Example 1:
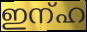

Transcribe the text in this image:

ഇന്ഹ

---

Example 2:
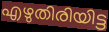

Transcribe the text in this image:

എഴുതിരിയിട്ട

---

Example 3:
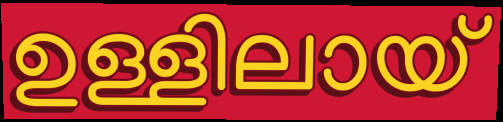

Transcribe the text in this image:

ഉള്ളിലായ്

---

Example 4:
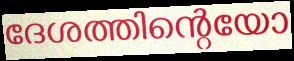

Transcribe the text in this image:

ദേശത്തിന്റെയോ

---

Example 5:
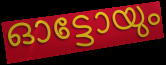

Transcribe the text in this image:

ഓട്ടോയും